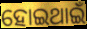
ହୋଇଥାଇଁ